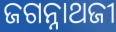
ଜଗନ୍ନାଥଜୀ